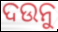
ଦଉନୁ